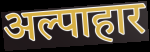
अल्पाहार